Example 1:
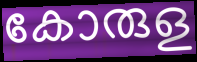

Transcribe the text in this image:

കോരുള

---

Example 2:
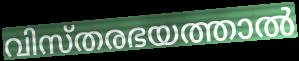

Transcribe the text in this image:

വിസ്തരഭയത്താൽ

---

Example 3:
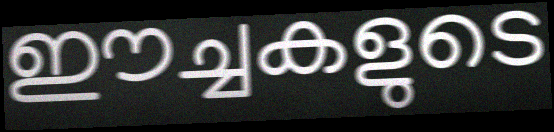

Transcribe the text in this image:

ഈച്ചകളുടെ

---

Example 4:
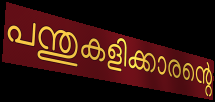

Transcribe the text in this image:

പന്തുകളിക്കാരന്റെ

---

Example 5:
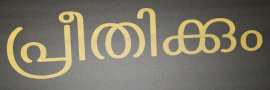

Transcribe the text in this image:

പ്രീതിക്കും